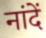
नांदें